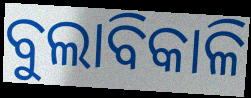
ବୁଲାବିକାଳି